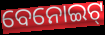
ବେନୋଇଟ୍